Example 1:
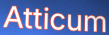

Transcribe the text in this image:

Atticum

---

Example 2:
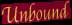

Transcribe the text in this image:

Unbound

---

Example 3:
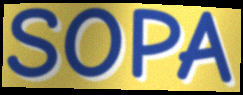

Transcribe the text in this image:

SOPA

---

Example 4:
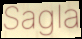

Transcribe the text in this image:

Sagla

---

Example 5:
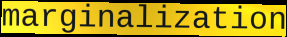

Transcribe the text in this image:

marginalization